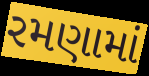
રમણામાં